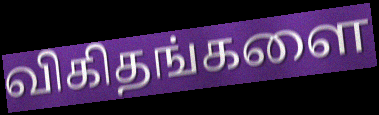
விகிதங்களை